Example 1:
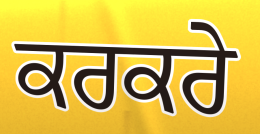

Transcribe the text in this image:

ਕਰਕਰੇ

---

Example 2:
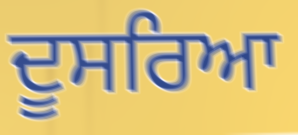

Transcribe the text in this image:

ਦੂਸਰਿਆ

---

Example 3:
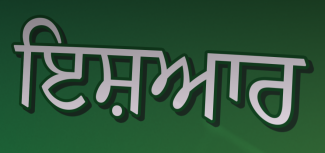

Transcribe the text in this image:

ਇਸ਼ਆਰ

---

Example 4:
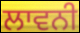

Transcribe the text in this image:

ਲਾਵਨੀ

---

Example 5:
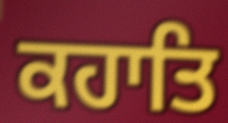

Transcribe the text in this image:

ਕਹਾਤਿ